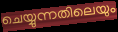
ചെയ്യുന്നതിലെയും